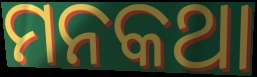
ମନକଥା